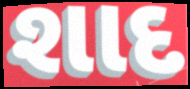
શાદ